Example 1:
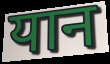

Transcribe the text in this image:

यान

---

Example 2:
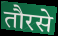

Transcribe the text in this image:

तौरसे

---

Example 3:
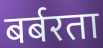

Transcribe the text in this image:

बर्बरता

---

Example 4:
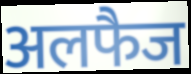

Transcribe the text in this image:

अलफैज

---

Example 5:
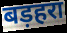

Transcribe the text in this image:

बड़हरा